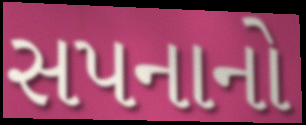
સપનાનો